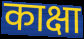
काक्षा